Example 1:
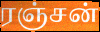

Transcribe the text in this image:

ரஞ்சன்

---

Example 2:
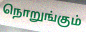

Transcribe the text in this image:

நொறுங்கும்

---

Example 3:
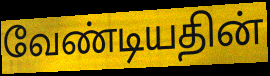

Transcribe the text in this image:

வேண்டியதின்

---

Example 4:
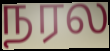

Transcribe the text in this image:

நரல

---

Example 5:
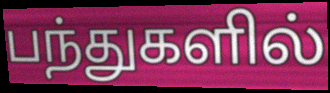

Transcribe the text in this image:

பந்துகளில்